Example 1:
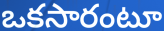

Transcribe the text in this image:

ఒకసారంటూ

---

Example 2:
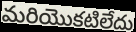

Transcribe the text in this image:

మరియొకటిలేదు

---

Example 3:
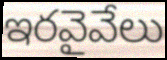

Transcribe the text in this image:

ఇరవైవేలు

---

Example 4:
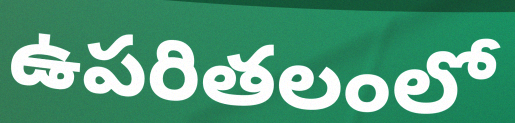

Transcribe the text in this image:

ఉపరితలంలో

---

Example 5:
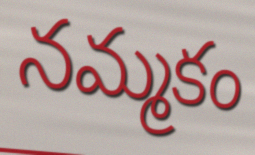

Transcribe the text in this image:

నమ్మకం